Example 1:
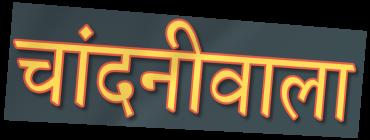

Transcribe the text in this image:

चांदनीवाला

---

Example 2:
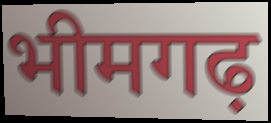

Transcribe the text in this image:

भीमगढ़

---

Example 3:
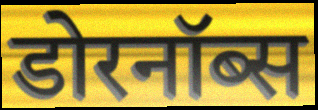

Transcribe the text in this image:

डोरनॉब्स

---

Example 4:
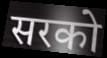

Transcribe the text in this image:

सरको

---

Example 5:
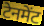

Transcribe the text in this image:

टेनमेंट